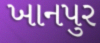
ખાનપુર